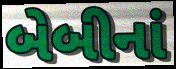
બેબીનાં